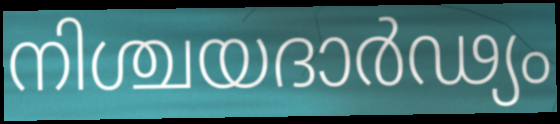
നിശ്ചയദാർഢ്യം